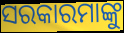
ସରକାରମାଙ୍କୁ